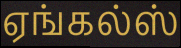
ஏங்கல்ஸ்